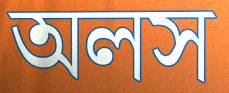
অলস